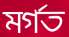
মৰ্গত